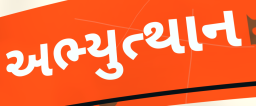
અભ્યુત્થાન